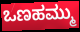
ಒಣಹಮ್ಮು